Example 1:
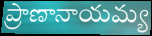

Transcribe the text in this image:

ప్రాణానాయమ్య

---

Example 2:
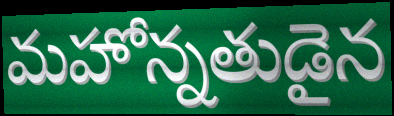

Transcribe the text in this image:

మహోన్నతుడైన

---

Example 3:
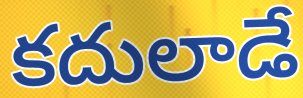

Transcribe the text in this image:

కదులాడే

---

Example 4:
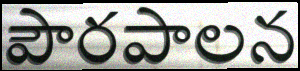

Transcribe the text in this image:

పౌరపాలన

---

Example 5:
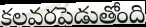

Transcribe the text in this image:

కలవరపెడుతోంది